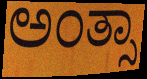
ಅಂತ್ಸಾ